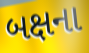
બક્ષના